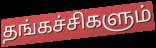
தங்கச்சிகளும்